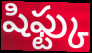
షిఫ్ట్కు